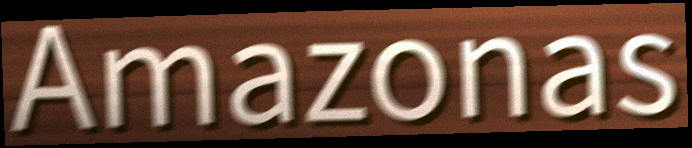
Amazonas